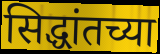
सिद्धांतच्या